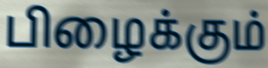
பிழைக்கும்